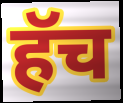
हॅच